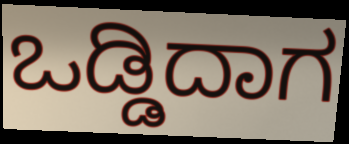
ಒಡ್ಡಿದಾಗ